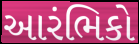
આરંભિકો